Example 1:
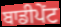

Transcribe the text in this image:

ਬਾਡੀਪੇਂਟ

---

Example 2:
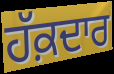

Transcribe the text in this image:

ਹੱਕ਼ਦਾਰ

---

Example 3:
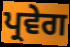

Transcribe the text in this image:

ਪ੍ਰਵੇਗ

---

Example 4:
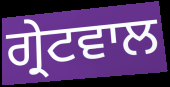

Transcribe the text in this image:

ਗ੍ਰੇਟਵਾਲ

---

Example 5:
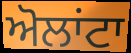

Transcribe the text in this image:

ਅੋਲਾਂਟਾ